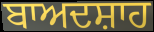
ਬਾਅਦਸ਼ਾਹ